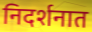
निदर्शनात